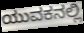
ಯುವಕನಲ್ಲಿ